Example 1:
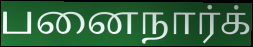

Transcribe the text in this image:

பனைநார்க்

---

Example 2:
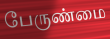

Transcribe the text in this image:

பேருண்மை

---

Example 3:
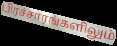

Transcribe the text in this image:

பிரச்சாரங்களிலும்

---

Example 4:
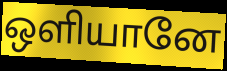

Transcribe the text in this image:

ஒளியானே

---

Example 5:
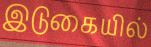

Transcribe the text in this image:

இடுகையில்